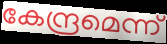
കേന്ദ്രമെന്ന്